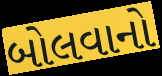
બોલવાનો